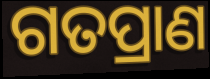
ଗତପ୍ରାଣ